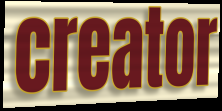
creator